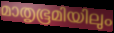
മാതൃഭൂമിയിലും